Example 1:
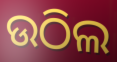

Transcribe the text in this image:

ଉଠିଲ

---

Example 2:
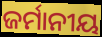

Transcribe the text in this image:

ଜର୍ମାନୀୟ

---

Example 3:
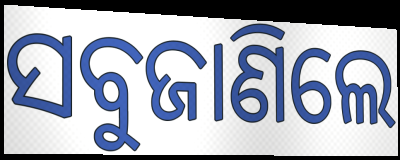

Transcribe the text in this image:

ସବୁଜାଣିଲେ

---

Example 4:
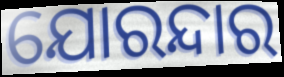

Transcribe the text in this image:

ଯୋରନ୍ଦାର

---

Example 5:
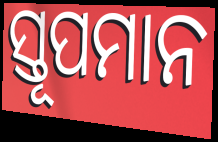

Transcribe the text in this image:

ସ୍ତୂପମାନ